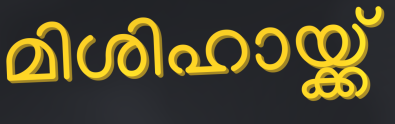
മിശിഹായ്ക്ക്